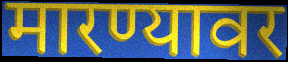
मारण्यावर